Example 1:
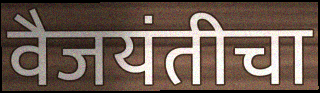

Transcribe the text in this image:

वैजयंतीचा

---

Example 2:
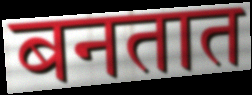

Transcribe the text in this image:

बनतात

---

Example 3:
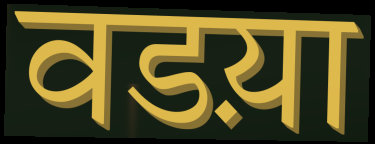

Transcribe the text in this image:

वडय़ा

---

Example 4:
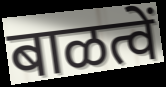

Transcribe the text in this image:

बाळत्वें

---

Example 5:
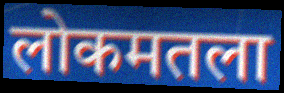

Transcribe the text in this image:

लोकमतला